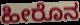
ಹೀರೊನ